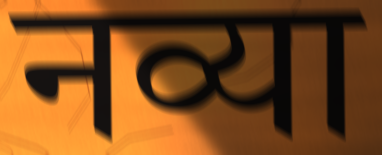
नव्या